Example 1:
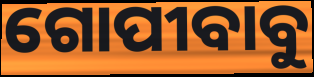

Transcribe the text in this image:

ଗୋପୀବାବୁ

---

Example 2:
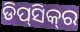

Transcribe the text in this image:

ଡିପ୍‌ସିକ୍‌ର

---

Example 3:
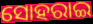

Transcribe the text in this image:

ସୋହରାଇ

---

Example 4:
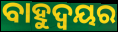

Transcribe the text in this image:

ବାହୁଦ୍ୱୟର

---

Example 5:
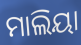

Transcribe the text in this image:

ମାଲିୟା